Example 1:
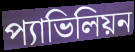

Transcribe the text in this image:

প্যাভিলিয়ন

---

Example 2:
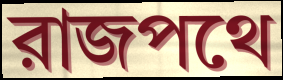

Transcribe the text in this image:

রাজপথে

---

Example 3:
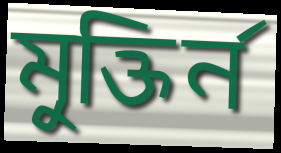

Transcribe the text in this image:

মুক্তির্ন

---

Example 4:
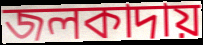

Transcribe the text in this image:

জলকাদায়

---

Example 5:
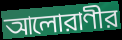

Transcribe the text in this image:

আলোরাণীর